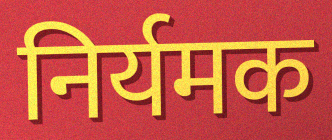
निर्यमक